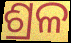
ଶ୍ରଳ